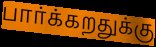
பார்க்கறதுக்கு